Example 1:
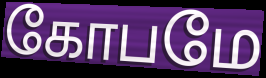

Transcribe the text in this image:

கோபமே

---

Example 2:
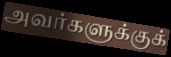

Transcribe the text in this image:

அவர்களுக்குக்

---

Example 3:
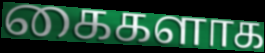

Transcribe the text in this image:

கைகளாக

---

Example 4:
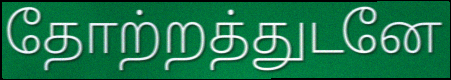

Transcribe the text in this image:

தோற்றத்துடனே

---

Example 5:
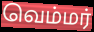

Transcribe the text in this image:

வெம்மர்